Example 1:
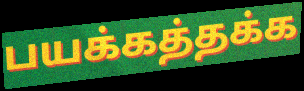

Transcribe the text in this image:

பயக்கத்தக்க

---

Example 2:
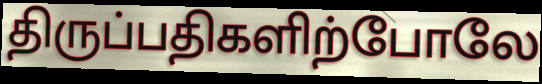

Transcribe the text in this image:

திருப்பதிகளிற்போலே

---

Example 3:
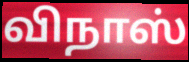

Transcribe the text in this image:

விநாஸ்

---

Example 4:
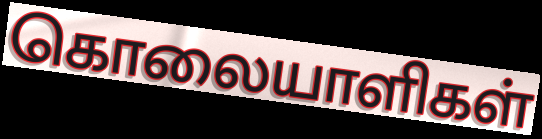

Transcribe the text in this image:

கொலையாளிகள்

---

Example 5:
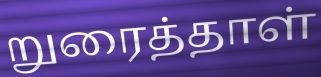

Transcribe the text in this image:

றுரைத்தாள்